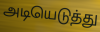
அடியெடுத்து